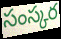
సంస్కర